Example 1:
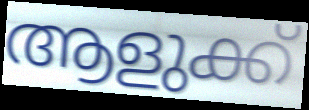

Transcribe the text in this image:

ആളുക്ക്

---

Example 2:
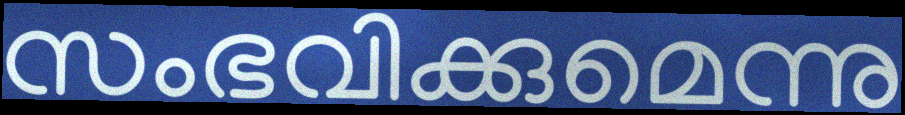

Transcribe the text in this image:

സംഭവിക്കുമെന്നു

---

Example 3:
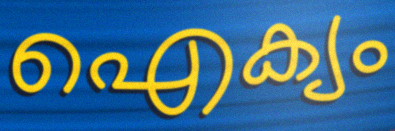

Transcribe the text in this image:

ഐക്യം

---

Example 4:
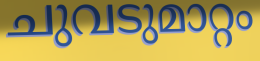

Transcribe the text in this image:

ചുവടുമാറ്റം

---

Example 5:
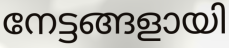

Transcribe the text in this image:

നേട്ടങ്ങളായി